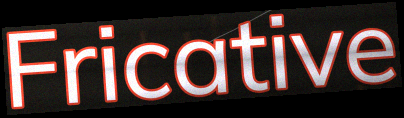
Fricative